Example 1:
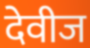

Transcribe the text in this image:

देवीज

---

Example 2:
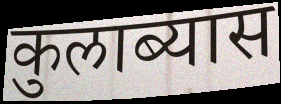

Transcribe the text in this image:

कुलाब्यास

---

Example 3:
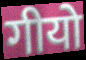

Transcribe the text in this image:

गीयो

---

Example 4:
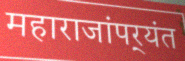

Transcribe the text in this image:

महाराजांपर्यंत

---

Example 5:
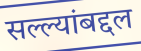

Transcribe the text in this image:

सल्ल्यांबद्दल